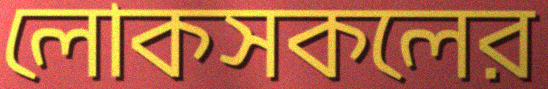
লোকসকলের